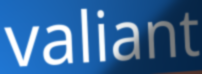
valiant